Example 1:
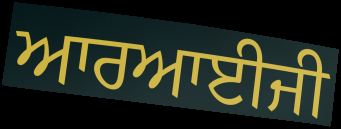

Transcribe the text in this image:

ਆਰਆਈਜੀ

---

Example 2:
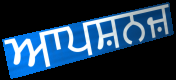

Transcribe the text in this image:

ਆਪਸ਼ਨਜ਼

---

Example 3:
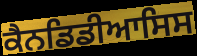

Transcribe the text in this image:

ਕੈਨਡਿਡੀਆਸਿਸ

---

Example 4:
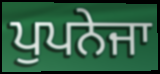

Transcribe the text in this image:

ਪੁਪਨੇਜਾ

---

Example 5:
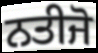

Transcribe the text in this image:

ਨਤੀਜੋ